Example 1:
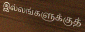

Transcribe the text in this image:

இல்லங்களுக்குத்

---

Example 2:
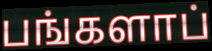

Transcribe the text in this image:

பங்களாப்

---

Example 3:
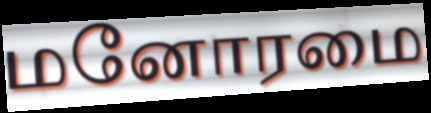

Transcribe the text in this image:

மனோரமை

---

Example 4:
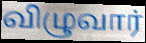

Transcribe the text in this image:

விழுவார்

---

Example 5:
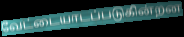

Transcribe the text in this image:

வேட்டையாடப்படுகின்றன